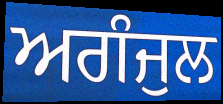
ਅਗੰਜੁਲ